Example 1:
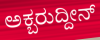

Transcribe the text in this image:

ಅಕ್ಬರುದ್ದೀನ್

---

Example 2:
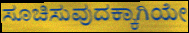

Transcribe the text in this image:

ಸೂಚಿಸುವುದಕ್ಕಾಗಿಯೇ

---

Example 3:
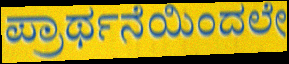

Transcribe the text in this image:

ಪ್ರಾರ್ಥನೆಯಿಂದಲೇ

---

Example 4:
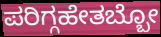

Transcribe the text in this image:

ಪರಿಗ್ಗಹೇತಬ್ಬೋ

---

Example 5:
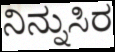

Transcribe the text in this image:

ನಿನ್ನುಸಿರ